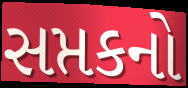
સપ્તકનો